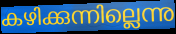
കഴിക്കുന്നില്ലെന്നു